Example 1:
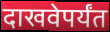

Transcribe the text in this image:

दाखवेपर्यंत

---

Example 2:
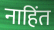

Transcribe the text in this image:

नाहिंत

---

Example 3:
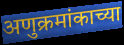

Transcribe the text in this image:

अणुक्रमांकाच्या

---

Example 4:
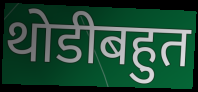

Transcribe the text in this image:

थोडीबहुत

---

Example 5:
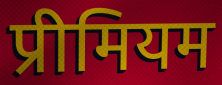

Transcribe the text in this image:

प्रीमियम